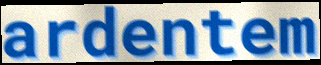
ardentem